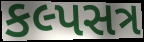
કલ્પસત્ર